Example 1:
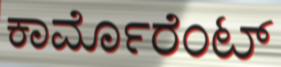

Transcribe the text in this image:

ಕಾರ್ಮೊರೆಂಟ್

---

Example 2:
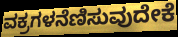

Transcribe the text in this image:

ವಕ್ರಗಳನೆಣಿಸುವುದೇಕೆ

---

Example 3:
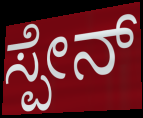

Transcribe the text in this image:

ಸ್ಪೇನ್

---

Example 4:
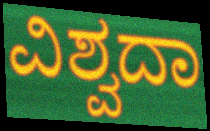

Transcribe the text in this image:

ವಿಶ್ವದಾ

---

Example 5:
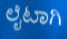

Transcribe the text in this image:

ಲೈಟಾಗಿ